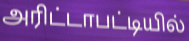
அரிட்டாபட்டியில்